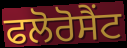
ਫਲੋਰੋਸੈਂਟ